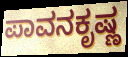
ಪಾವನಕೃಷ್ಣ